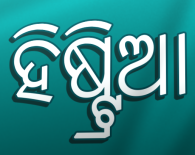
ହିଷ୍ଟ୍ରିଆ